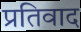
प्रतिवाद